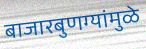
बाजारबुणग्यांमुळे